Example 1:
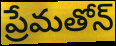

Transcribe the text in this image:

ప్రేమతోన్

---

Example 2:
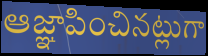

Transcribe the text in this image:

ఆజ్ఞాపించినట్లుగా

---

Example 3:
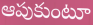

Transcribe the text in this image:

ఆపుకుంటూ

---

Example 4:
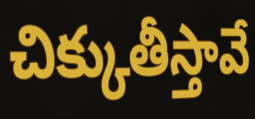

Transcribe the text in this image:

చిక్కుతీస్తావే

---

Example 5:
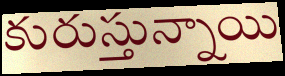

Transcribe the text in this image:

కురుస్తున్నాయి